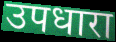
उपधारा